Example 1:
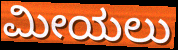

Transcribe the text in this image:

ಮೀಯಲು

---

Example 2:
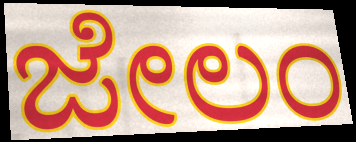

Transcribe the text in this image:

ಜೇಲಂ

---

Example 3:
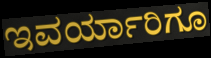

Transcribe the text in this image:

ಇವರ್ಯಾರಿಗೂ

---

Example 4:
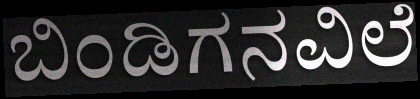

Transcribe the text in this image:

ಬಿಂಡಿಗನವಿಲೆ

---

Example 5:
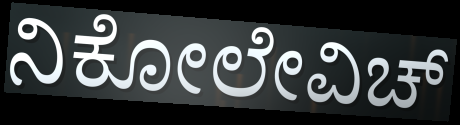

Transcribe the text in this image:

ನಿಕೋಲೇವಿಚ್